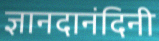
ज्ञानदानंदिनी